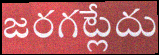
జరగట్లేదు